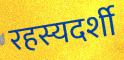
रहस्यदर्शी